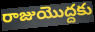
రాజుయొద్దకు